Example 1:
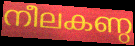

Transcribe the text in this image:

നീലകണ്ഠ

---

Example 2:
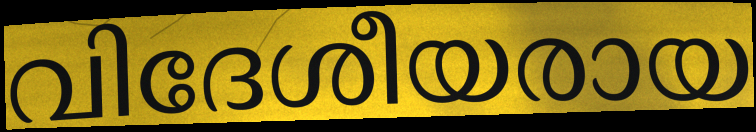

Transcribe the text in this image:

വിദേശീയരായ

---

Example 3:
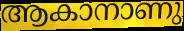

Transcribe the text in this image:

ആകാനാണു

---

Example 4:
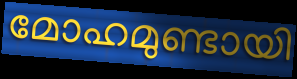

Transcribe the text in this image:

മോഹമുണ്ടായി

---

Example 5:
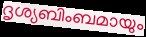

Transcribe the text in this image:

ദൃശ്യബിംബമായും